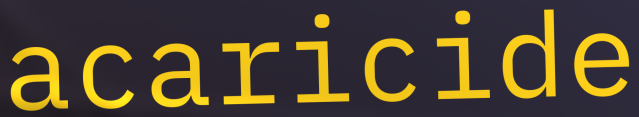
acaricide